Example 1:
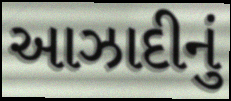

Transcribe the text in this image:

આઝાદીનું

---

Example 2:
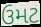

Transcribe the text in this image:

ઉમટ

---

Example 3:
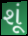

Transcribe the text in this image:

શૂં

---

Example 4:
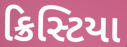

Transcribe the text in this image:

ક્રિસ્ટિયા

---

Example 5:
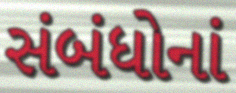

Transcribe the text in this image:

સંબંધોનાં